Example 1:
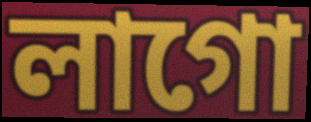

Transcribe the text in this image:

লাগো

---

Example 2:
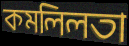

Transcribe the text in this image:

কমলিলতা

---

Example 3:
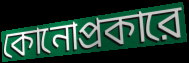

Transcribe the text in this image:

কোনোপ্রকারে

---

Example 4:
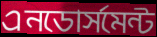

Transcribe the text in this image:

এনডোর্সমেন্ট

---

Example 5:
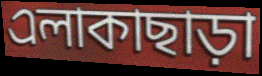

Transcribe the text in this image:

এলাকাছাড়া